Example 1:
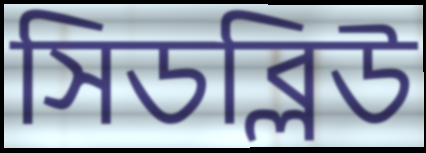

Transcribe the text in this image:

সিডব্লিউ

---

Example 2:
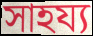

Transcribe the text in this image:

সাহয্য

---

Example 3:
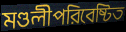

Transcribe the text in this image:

মণ্ডলীপরিবেষ্টিত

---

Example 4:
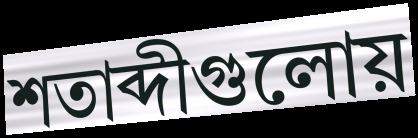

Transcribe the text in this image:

শতাব্দীগুলোয়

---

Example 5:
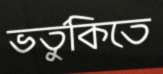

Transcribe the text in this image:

ভর্তুকিতে